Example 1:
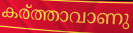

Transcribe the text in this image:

കര്ത്താവാണു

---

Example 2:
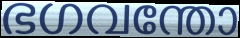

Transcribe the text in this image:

ഭഗവന്തോ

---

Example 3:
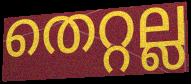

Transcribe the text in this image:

തെറ്റല്ല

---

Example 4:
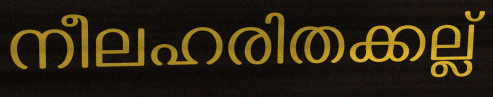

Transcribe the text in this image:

നീലഹരിതക്കല്ല്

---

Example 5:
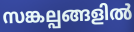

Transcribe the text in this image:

സങ്കല്പങ്ങളിൽ